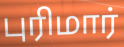
புரிமார்